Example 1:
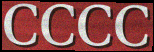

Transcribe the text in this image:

CCCC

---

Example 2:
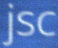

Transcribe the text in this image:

jsc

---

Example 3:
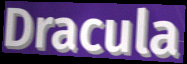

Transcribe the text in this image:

Dracula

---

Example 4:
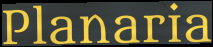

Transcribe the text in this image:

Planaria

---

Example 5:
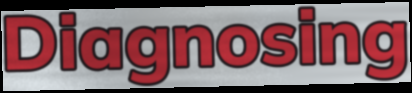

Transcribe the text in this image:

Diagnosing